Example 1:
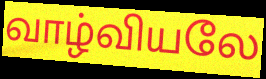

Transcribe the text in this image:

வாழ்வியலே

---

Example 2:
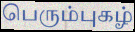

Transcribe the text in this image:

பெரும்புகழ்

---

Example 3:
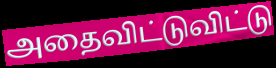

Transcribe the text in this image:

அதைவிட்டுவிட்டு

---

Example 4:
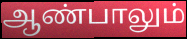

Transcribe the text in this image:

ஆண்பாலும்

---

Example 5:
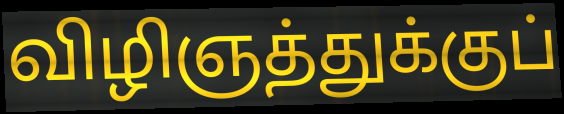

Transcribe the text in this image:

விழிஞத்துக்குப்